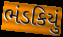
ભંડકિયું